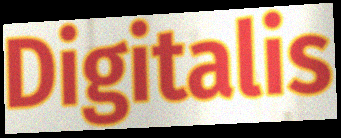
Digitalis